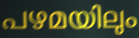
പഴമയിലും